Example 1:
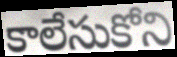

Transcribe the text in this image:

కాలేసుకోని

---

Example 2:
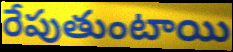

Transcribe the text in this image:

రేపుతుంటాయి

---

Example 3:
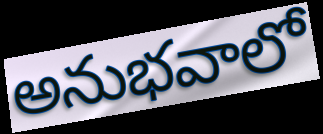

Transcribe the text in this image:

అనుభవాలో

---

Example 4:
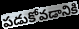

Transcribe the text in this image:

పడుకోవడానికి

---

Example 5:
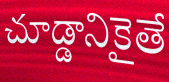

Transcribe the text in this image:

చూడ్డానికైతే